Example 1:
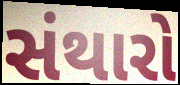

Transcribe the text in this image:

સંથારો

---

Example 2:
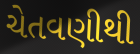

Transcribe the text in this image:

ચેતવણીથી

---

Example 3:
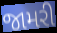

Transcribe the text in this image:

જામરી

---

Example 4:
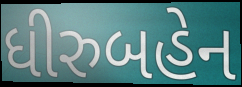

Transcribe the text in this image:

ધીરુબહેન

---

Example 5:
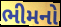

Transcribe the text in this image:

ભીમનો